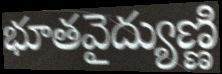
భూతవైద్యుణ్ణి